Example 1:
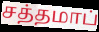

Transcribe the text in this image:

சத்தமாப்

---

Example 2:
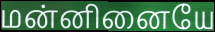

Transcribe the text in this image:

மன்னினையே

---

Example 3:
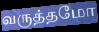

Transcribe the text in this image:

வருத்தமோ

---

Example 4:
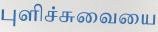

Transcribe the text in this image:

புளிச்சுவையை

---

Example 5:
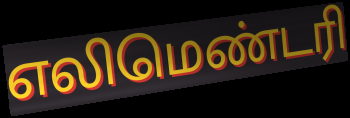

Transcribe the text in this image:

எலிமெண்டரி